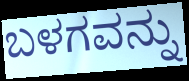
ಬಳಗವನ್ನು